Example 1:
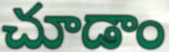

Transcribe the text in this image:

చూడాం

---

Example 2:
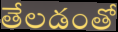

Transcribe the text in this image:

తేలడంతో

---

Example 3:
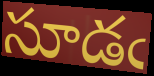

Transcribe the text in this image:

సూడఁ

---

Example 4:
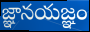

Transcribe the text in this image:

జ్ఞానయజ్ఞం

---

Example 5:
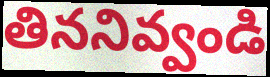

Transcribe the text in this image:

తిననివ్వండి